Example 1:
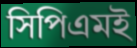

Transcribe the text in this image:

সিপিএমই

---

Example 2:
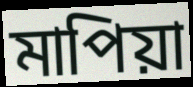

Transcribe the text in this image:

মাপিয়া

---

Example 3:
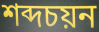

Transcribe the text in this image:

শব্দচয়ন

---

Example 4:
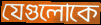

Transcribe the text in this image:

যেগুলোকে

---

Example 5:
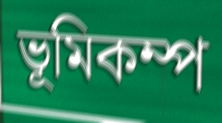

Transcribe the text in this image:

ভূমিকম্প